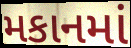
મકાનમાં